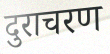
दुराचरण